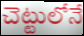
చెట్టులోనే